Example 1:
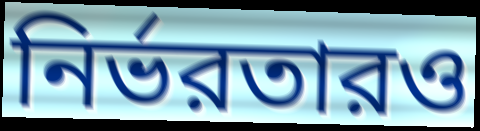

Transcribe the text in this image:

নির্ভরতারও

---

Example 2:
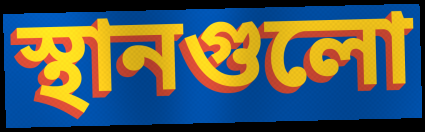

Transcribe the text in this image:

স্থানগুলো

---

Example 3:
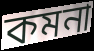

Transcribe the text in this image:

কমনা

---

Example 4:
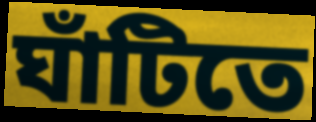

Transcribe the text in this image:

ঘাঁটিতে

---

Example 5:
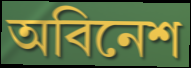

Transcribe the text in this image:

অবিনেশ